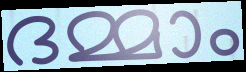
ദമ്മാം